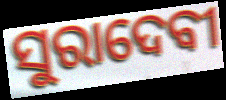
ସୁରାଦେବୀ